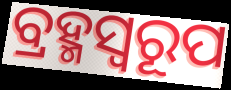
ବ୍ରହ୍ମସ୍ୱରୂପ